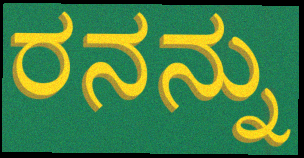
ರನನ್ನು